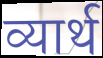
व्यार्थ